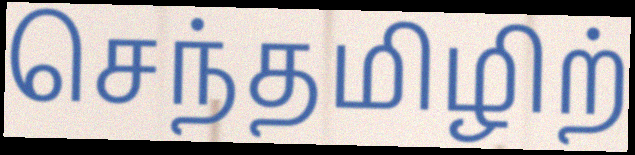
செந்தமிழிற்